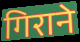
गिराने